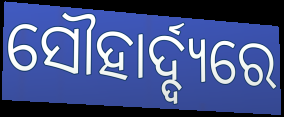
ସୌହାର୍ଦ୍ଦ୍ୟରେ